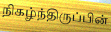
நிகழ்ந்திருப்பின்